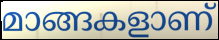
മാങ്ങകളാണ്